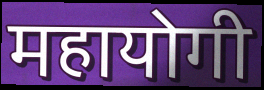
महायोगी